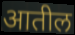
आतील